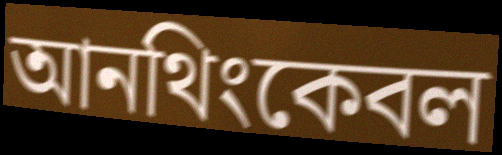
আনথিংকেবল